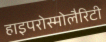
हाइपरोस्मोलैरिटी